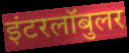
इंटरलॉबुलर